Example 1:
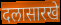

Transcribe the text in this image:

दलासारखे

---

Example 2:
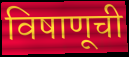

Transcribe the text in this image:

विषाणूची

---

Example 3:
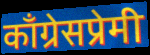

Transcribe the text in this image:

काँग्रेसप्रेमी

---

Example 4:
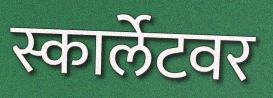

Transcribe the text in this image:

स्कार्लेटवर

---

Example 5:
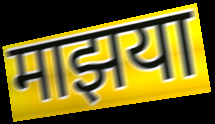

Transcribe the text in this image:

माझया